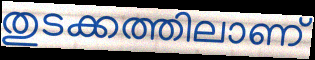
തുടക്കത്തിലാണ്